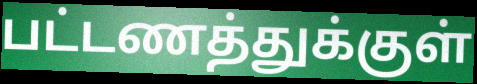
பட்டணத்துக்குள்